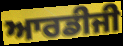
ਆਰਡੀਜੀ